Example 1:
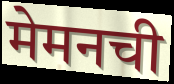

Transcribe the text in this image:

मेमनची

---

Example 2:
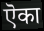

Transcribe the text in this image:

ऎका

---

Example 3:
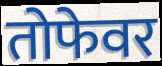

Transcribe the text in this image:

तोफेवर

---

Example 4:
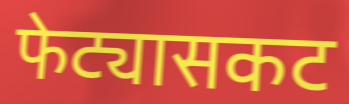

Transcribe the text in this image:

फेट्यासकट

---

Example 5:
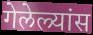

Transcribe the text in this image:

गेलेल्यांस